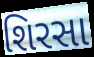
શિરસા